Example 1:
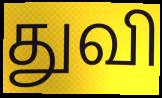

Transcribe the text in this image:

துவி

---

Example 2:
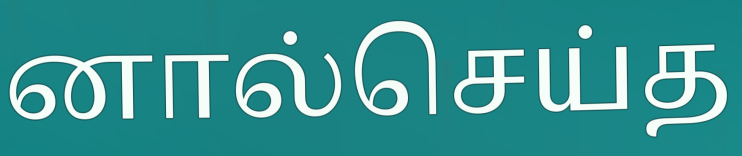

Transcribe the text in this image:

னால்செய்த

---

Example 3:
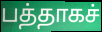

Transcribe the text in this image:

பத்தாகச்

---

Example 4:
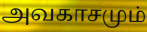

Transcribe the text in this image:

அவகாசமும்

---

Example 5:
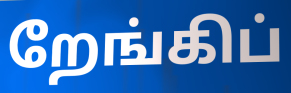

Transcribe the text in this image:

றேங்கிப்